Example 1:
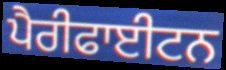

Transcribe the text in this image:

ਪੈਰੀਫਾਈਟਨ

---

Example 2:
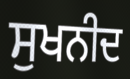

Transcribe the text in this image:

ਸੁਖਨੀਦ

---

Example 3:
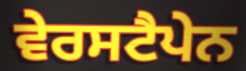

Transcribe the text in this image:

ਵੇਰਸਟੈਪੇਨ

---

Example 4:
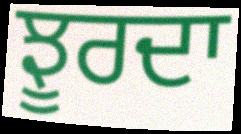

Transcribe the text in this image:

ਝੂਰਦਾ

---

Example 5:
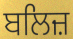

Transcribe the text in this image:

ਬਲਿਜ਼